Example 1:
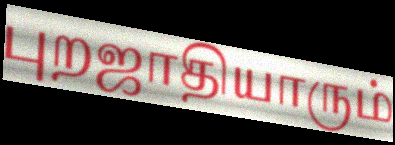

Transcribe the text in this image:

புறஜாதியாரும்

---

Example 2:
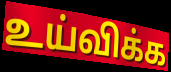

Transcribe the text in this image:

உய்விக்க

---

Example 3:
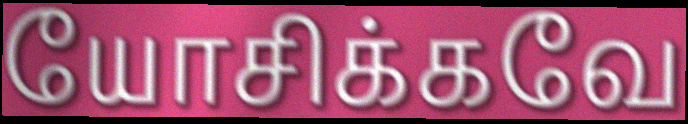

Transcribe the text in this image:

யோசிக்கவே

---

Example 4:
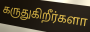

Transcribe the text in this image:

கருதுகிறீர்களா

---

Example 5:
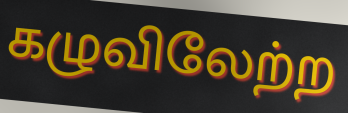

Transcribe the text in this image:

கழுவிலேற்ற